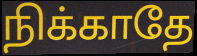
நிக்காதே